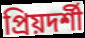
প্রিয়দর্শী